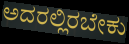
ಅದರಲ್ಲಿರಬೇಕು